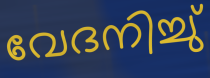
വേദനിച്ചു്